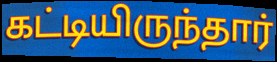
கட்டியிருந்தார்